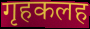
गृहकलह